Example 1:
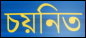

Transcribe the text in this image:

চয়নিত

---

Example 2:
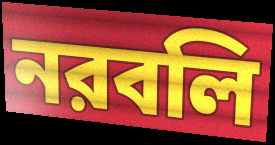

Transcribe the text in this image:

নরবলি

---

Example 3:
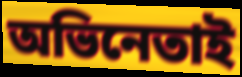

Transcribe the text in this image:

অভিনেতাই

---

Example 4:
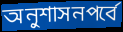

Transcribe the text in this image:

অনুশাসনপর্বে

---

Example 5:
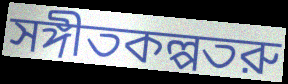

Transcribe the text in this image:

সঙ্গীতকল্পতরু